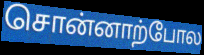
சொன்னாற்போல